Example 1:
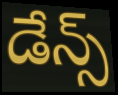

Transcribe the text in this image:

డేన్స్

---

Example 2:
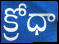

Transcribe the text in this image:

క్రోధా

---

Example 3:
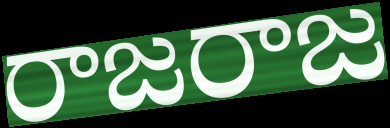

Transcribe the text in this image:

రాజరాజ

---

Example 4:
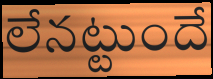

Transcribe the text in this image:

లేనట్టుందే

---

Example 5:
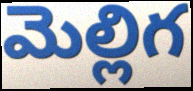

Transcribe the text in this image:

మెల్లిగ